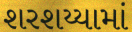
શરશય્યામાં